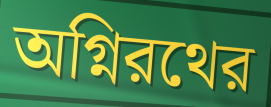
অগ্নিরথের